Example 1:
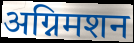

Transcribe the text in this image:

अग्निमशन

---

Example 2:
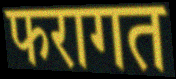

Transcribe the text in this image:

फरागत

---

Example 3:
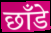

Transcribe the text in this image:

छाँडे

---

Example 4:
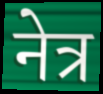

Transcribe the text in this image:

नेत्र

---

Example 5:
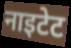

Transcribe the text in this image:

नाइटेट